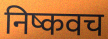
निष्कवच